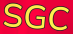
SGC